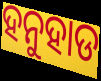
ହନୁହାଡ